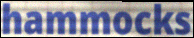
hammocks